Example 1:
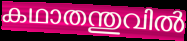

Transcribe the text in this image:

കഥാതന്തുവിൽ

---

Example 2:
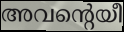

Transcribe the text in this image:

അവന്റെയീ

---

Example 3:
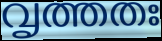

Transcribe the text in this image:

വൃത്തതഃ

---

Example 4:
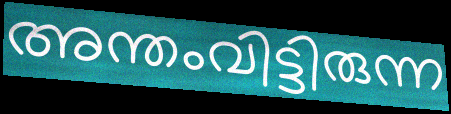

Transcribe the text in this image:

അന്തംവിട്ടിരുന്ന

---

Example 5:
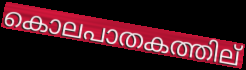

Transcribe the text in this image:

കൊലപാതകത്തില്